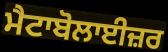
ਮੈਟਾਬੋਲਾਈਜ਼ਰ